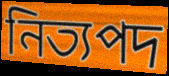
নিত্যপদ